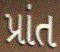
પ્રાંત